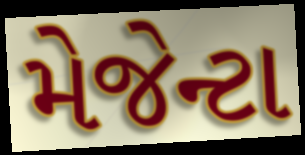
મેજેન્ટા